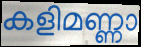
കളിമണ്ണാ